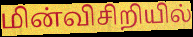
மின்விசிறியில்